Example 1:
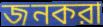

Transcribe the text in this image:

জনকরা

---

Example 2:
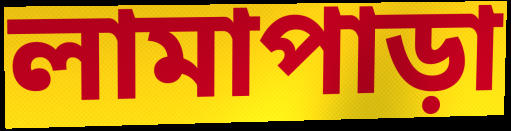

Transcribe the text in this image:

লামাপাড়া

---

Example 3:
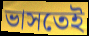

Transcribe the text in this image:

ভাসতেই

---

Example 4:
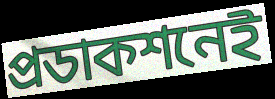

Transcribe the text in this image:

প্রডাকশনেই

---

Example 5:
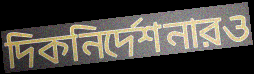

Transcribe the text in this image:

দিকনির্দেশনারও